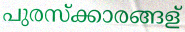
പുരസ്ക്കാരങ്ങള്